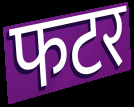
फटर